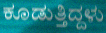
ಕೂಡುತ್ತಿದ್ದಳು